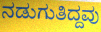
ನಡುಗುತಿದ್ದವು